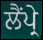
ਲੈਂਪ੍ਰੇ